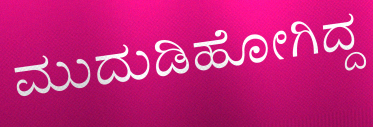
ಮುದುಡಿಹೋಗಿದ್ದ